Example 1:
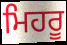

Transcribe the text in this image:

ਮਿਹਰੂ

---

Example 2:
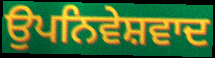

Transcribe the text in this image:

ਉਪਨਿਵੇਸ਼ਵਾਦ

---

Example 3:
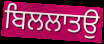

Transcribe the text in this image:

ਬਿਲਲਾਤਉ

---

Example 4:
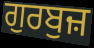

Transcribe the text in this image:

ਗੁਰਬੁਜ਼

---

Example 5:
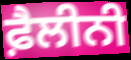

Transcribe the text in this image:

ਫ਼ੈਲੀਨੀ